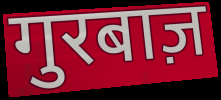
गुरबाज़